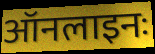
ऑनलाइनः